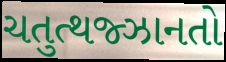
ચતુત્થજ્ઝાનતો